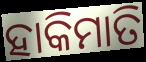
ହାକିମାତି